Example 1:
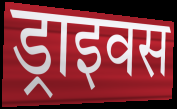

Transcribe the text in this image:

ड्राइवस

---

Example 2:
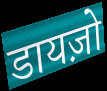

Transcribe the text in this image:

डायज़ो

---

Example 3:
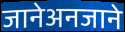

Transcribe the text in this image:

जानेअनजाने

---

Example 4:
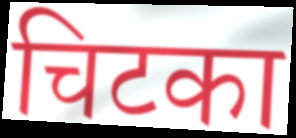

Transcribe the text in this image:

चिटका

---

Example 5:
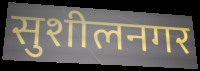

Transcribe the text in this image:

सुशीलनगर